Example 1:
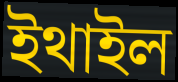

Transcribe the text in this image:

ইথাইল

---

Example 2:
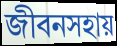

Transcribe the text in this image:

জীবনসহায়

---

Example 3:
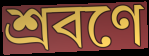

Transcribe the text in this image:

শ্রবণে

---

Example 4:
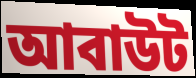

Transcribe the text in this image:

আবাউট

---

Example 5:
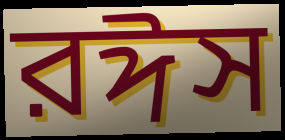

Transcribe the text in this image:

রঈস